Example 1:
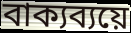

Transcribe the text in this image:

বাক্যব্যয়ে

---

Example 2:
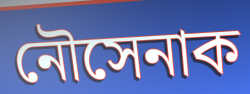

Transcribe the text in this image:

নৌসেনাক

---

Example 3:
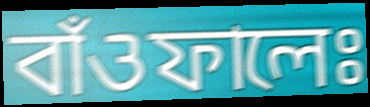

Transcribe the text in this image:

বাঁওফালেঃ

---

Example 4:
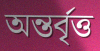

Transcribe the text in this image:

অন্তৰ্বৃত্ত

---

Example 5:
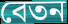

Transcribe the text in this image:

বেতন